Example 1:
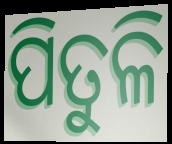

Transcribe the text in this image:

ପିତୁଳି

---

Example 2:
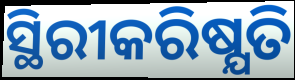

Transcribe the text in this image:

ସ୍ଥିରୀକରିଷ୍ଯତି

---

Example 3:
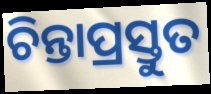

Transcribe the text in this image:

ଚିନ୍ତାପ୍ରସ୍ତୁତ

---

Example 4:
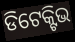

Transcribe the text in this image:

ଡିଟେକ୍ଟିଭ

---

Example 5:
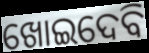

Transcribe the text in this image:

ଖୋଇଦେବି